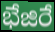
భేజిరే